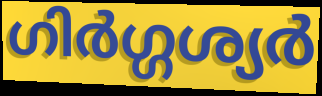
ഗിർഗ്ഗശ്യർ